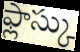
ఫ్లాస్కు